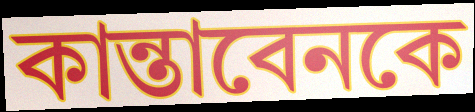
কান্তাবেনকে